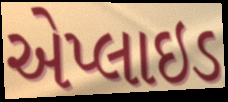
એપ્લાઇડ